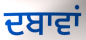
ਦਬਾਵਾਂ